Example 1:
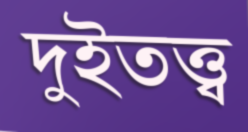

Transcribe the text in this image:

দুইতত্ত্ব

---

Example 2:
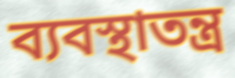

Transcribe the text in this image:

ব্যবস্থাতন্ত্র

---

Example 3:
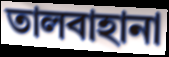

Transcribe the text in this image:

তালবাহানা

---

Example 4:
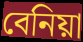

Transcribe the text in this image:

বেনিয়া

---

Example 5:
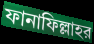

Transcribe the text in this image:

ফানাফিল্লাহর